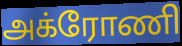
அக்ரோணி